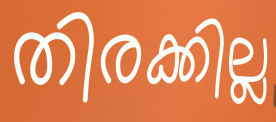
തിരക്കില്ല